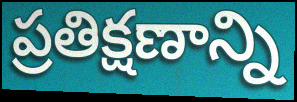
ప్రతిక్షణాన్ని